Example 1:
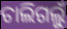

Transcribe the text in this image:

ଚାଲିଗଲୁଁ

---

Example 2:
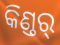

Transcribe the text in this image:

କିଣ୍ଡର୍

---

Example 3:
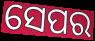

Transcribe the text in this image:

ସେପର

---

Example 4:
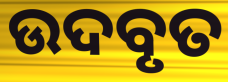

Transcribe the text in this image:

ଉଦବୃତ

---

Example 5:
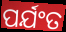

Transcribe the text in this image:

ପର୍ଯଂତ